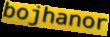
bojhanor